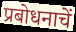
प्रबोधनाचें